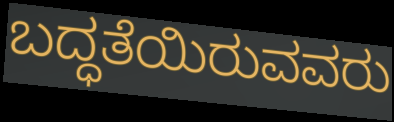
ಬದ್ಧತೆಯಿರುವವರು